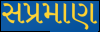
સપ્રમાણ